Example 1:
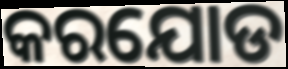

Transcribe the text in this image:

କରଯୋଡ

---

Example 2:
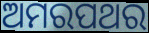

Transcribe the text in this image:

ଅମରପଥର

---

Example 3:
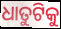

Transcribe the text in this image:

ଧାତୁଟିକୁ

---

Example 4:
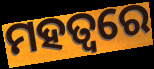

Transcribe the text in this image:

ମହତ୍ୱରେ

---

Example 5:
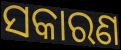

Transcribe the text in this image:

ସକାରଣ